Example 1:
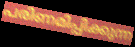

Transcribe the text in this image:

പരിണമിപ്പിക്കുന്ന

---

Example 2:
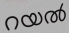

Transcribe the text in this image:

റയൽ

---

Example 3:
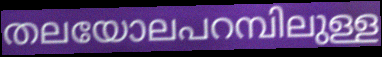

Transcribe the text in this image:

തലയോലപറമ്പിലുള്ള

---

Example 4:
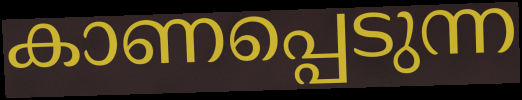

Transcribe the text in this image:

കാണപ്പെടുന്ന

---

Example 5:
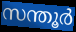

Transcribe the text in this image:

സന്തൂർ